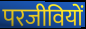
परजीवियों